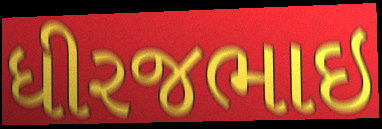
ધીરજભાઇ